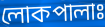
লোকপালাঃ